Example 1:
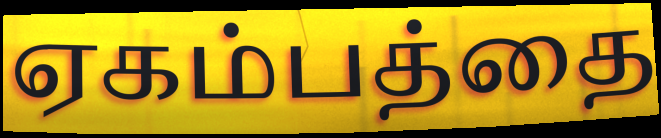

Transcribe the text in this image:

ஏகம்பத்தை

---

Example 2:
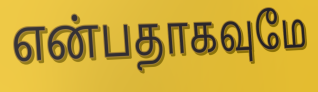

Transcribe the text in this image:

என்பதாகவுமே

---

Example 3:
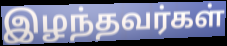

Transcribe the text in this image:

இழந்தவர்கள்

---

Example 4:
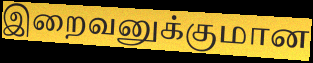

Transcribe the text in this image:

இறைவனுக்குமான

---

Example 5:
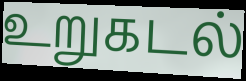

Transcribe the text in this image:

உறுகடல்